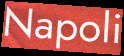
Napoli